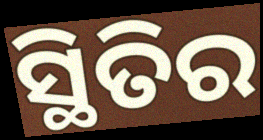
ସ୍ଥିତିର